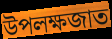
উপলক্ষজাত